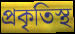
প্রকৃতিস্থ